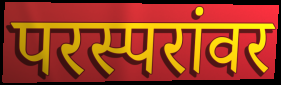
परस्परांवर